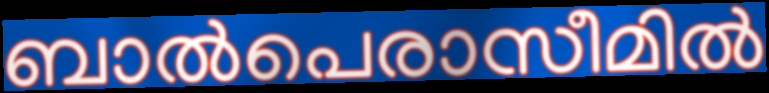
ബാൽപെരാസീമിൽ